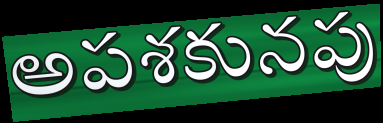
అపశకునపు